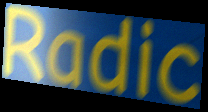
Radic